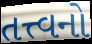
તત્ત્વનો